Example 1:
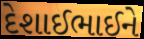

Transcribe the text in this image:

દેશાઈભાઈને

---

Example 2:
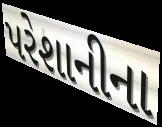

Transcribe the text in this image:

પરેશાનીના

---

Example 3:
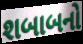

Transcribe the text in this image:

શબાબનો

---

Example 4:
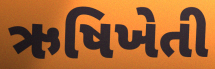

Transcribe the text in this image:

ઋષિખેતી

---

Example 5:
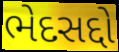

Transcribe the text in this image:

ભેદસદ્દો